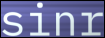
sinr